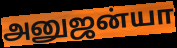
அனுஜன்யா